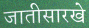
जातीसारखे